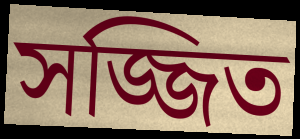
সজ্জিত